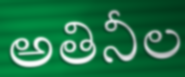
అతినీల